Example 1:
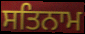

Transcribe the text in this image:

ਸਤਿਨਾਮ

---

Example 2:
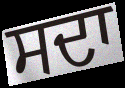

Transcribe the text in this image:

ਸਦਾ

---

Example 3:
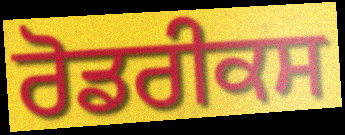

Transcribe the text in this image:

ਰੋਡਰੀਕਸ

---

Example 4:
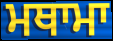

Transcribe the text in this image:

ਮਥਾਮਾ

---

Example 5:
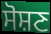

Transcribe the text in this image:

ਸੋਸ਼ਣ